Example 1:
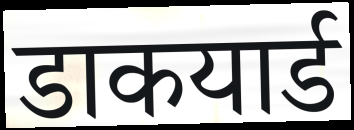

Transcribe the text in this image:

डाकयार्ड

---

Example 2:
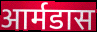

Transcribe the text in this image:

आर्मडास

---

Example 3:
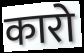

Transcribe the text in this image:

कारो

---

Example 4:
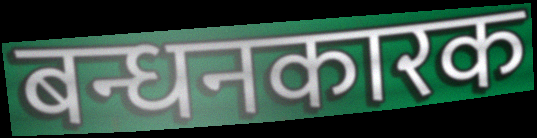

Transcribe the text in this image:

बन्धनकारक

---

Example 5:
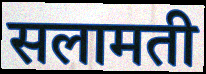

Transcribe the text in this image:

सलामती